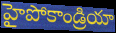
హైపోకాండ్రియా